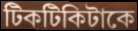
টিকটিকিটাকে